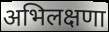
अभिलक्षणा